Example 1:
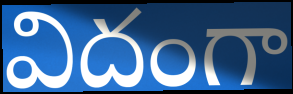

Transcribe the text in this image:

విదంగా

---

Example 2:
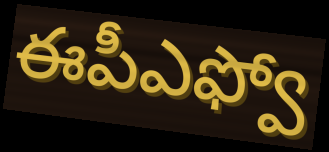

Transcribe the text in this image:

ఈపీఎఫ్వో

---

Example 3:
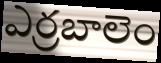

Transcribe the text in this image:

ఎర్రబాలెం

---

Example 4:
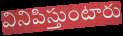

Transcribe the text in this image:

వినిపిస్తుంటారు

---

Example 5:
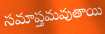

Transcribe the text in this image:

సమాప్తమవుతాయి